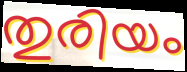
തുരിയം